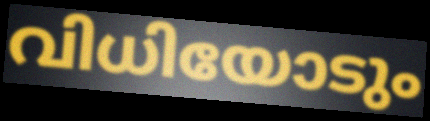
വിധിയോടും